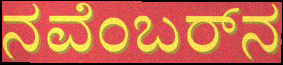
ನವೆಂಬರ್‌ನ